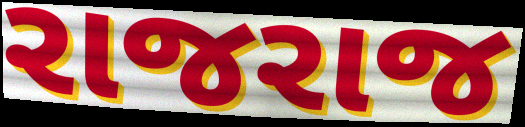
રાજરાજ